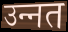
उन्‍नत